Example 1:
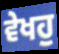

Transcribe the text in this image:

ਵੇਖਹੁ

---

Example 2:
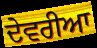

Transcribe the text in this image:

ਦੇਵਰੀਆ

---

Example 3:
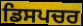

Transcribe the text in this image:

ਡਿਸਪਚਰ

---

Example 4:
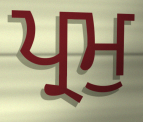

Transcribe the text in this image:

ਪ੍ਰਮੁ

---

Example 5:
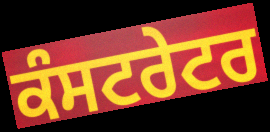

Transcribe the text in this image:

ਕੰਸਟਰੇਟਰ